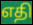
எதி